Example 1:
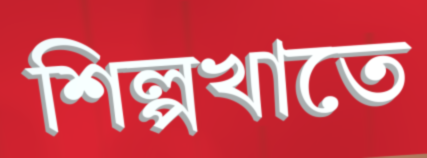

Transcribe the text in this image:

শিল্পখাতে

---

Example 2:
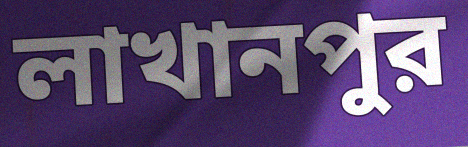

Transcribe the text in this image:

লাখানপুর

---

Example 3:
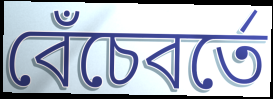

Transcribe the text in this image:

বেঁচেবর্তে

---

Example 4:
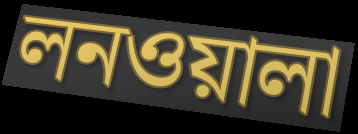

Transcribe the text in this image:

লনওয়ালা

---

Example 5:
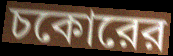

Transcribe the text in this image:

চকোরের